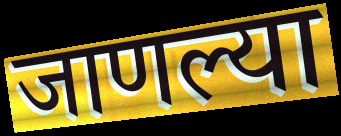
जाणल्या